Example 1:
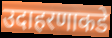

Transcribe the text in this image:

उदाहरणाकडे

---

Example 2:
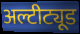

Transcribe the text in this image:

अल्टीट्यूड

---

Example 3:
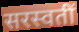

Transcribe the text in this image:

सरस्वतीं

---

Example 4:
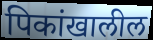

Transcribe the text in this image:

पिकांखालील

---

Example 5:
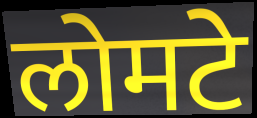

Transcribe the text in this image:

लोमटे